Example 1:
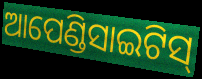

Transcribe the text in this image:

ଆପେଣ୍ଡିସାଇଟିସ୍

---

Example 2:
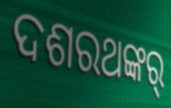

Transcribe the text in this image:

ଦଶରଥଙ୍କର୍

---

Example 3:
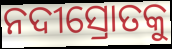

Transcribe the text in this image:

ନଦୀସ୍ରୋତକୁ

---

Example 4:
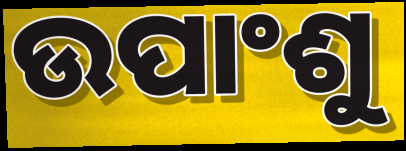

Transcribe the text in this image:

ଉପାଂଶୁ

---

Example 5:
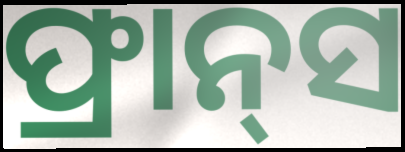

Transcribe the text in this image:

ଫ୍ରାନ୍‍ସ